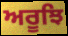
ਅਰੂਝਿ